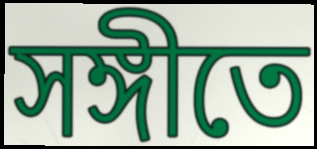
সঙ্গীতে